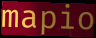
mapio